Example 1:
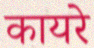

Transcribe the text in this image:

कायरे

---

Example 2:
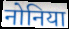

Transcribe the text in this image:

नोनिया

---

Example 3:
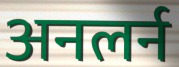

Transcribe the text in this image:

अनलर्न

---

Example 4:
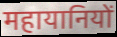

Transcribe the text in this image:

महायानियों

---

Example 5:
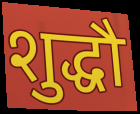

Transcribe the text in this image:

शुद्धौ